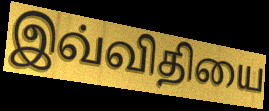
இவ்விதியை